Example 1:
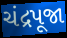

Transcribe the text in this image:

ચંદ્રપૂજા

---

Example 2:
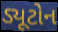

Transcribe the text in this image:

ડ્યૂટોન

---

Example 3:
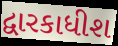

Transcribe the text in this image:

દ્વારકાધીશ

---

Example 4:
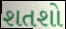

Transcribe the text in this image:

શતશો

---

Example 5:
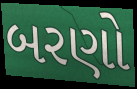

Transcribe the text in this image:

બરણો